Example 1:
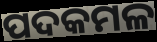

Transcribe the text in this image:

ପଦକମଳ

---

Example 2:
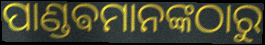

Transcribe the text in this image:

ପାଣ୍ଡଵମାନଙ୍କଠାରୁ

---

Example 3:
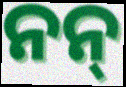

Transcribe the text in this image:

ନନ୍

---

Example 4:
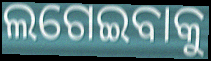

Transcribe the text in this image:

ଲଗେଇବାକୁ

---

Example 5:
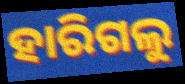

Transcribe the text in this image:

ହାରିଗଲୁ